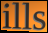
ills